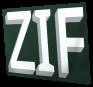
ZIF